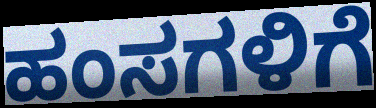
ಹಂಸಗಳಿಗೆ